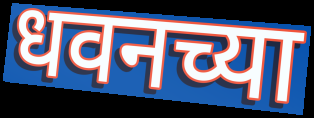
धवनच्या